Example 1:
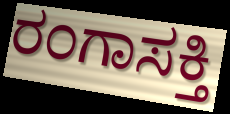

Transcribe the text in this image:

ರಂಗಾಸಕ್ತಿ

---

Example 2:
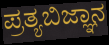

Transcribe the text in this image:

ಪ್ರತ್ಯಬಿಜ್ಞಾನ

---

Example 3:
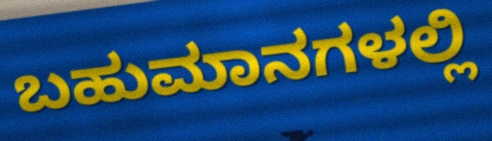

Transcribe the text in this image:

ಬಹುಮಾನಗಳಲ್ಲಿ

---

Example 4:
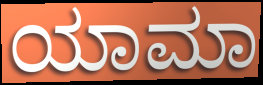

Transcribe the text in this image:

ಯಾಮಾ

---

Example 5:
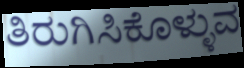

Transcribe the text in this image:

ತಿರುಗಿಸಿಕೊಳ್ಳುವ